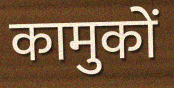
कामुकों